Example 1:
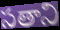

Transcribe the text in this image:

సతాని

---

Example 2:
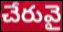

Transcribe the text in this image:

చేరువై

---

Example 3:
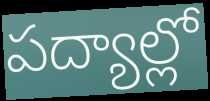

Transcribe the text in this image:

పద్యాల్లో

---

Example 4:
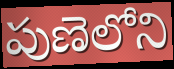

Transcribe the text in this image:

పుణెలోని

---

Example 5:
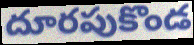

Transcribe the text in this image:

దూరపుకొండ